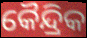
କୈନ୍ଦ୍ରିକ